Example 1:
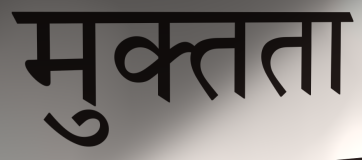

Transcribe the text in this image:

मुक्तता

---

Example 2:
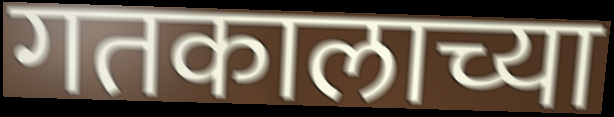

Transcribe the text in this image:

गतकालाच्या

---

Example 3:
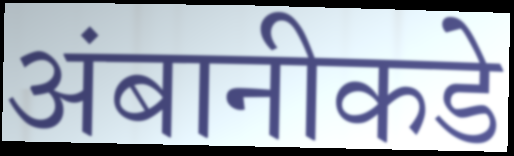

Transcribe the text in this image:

अंबानीकडे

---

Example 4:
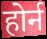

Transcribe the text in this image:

होर्न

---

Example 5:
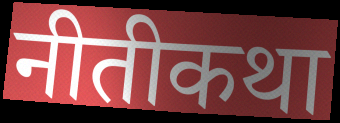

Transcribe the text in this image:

नीतीकथा